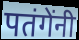
पतंगेंनी